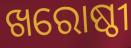
ଖରୋଷ୍ଠୀ